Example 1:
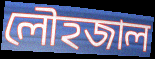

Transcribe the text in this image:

লৌহজাল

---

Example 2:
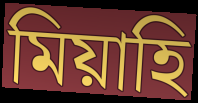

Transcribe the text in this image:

মিয়াহি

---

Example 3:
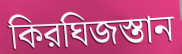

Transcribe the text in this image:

কিরঘিজস্তান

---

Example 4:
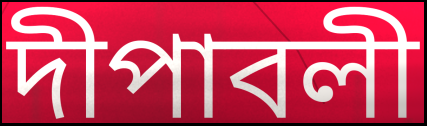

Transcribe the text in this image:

দীপাবলী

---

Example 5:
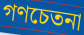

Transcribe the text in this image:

গণচেতনা